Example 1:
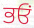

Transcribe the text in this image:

ਭਓਂ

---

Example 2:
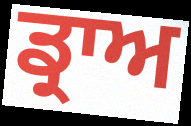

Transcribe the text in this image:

ਡ੍ਰਾਅ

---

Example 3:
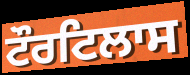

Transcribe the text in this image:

ਟੌਰਟਿਲਾਸ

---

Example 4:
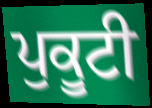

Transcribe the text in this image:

ਪੁਕੂਟੀ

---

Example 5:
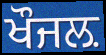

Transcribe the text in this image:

ਖੌਜਲ਼